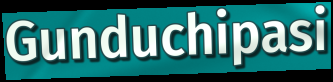
Gunduchipasi